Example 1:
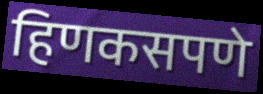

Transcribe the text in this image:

हिणकसपणे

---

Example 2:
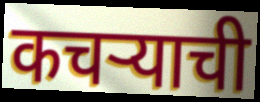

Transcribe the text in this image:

कचर्‍याची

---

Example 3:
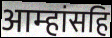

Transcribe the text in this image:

आम्हांसहि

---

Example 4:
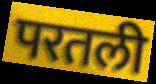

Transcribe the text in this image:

परतली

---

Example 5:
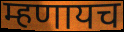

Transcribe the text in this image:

म्हणायच